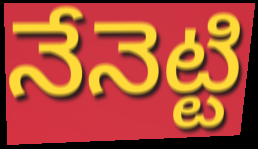
నేనెట్టి